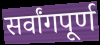
सर्वांगपूर्ण